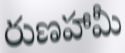
రుణహామీ